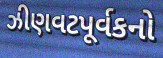
ઝીણવટપૂર્વકનો